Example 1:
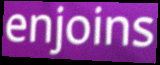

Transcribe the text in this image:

enjoins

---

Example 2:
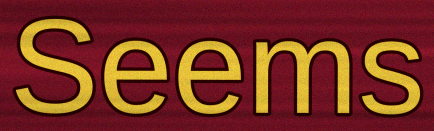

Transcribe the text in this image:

Seems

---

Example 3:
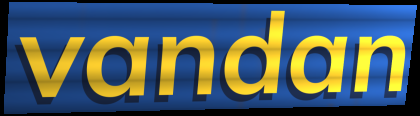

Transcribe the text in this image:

vandan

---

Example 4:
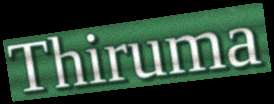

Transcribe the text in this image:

Thiruma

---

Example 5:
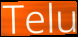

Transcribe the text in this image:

Telu